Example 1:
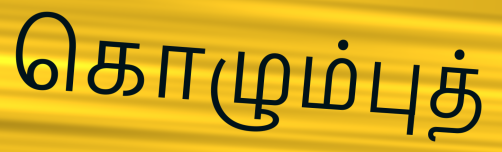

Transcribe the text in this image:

கொழும்புத்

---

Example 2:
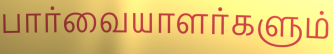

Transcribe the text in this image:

பார்வையாளர்களும்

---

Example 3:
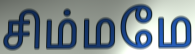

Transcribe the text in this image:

சிம்மமே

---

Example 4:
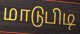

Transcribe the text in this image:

மாடுபிடி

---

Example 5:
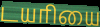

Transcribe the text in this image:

டயரியை